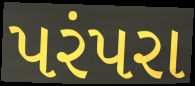
પરંપરા